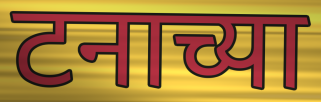
टनाच्या